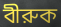
বীৰুক